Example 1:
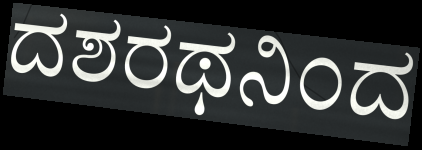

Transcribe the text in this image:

ದಶರಥನಿಂದ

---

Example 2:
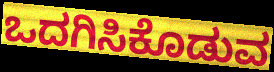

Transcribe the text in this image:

ಒದಗಿಸಿಕೊಡುವ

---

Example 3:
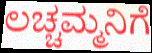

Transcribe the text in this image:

ಲಚ್ಚಮ್ಮನಿಗೆ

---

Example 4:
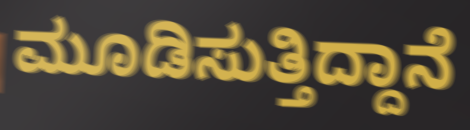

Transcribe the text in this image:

ಮೂಡಿಸುತ್ತಿದ್ದಾನೆ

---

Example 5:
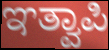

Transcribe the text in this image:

ಞತ್ವಾಪಿ